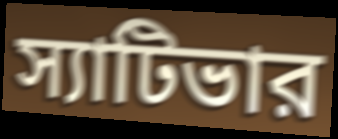
স্যাটিভার